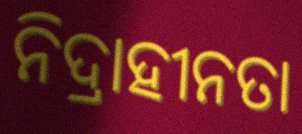
ନିଦ୍ରାହୀନତା